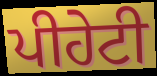
ਪੀਹੇਟੀ